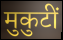
मुकुटीं